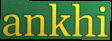
ankhi